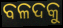
ବଳଦକୁ